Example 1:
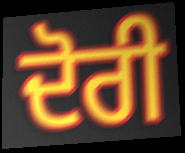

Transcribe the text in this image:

ਦੋਰੀ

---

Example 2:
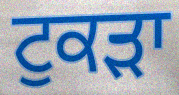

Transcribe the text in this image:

ਟੁਕਡ਼ਾ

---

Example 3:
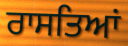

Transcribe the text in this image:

ਰਾਸਤਿਆਂ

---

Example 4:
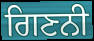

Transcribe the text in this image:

ਗਿਣਨੀ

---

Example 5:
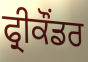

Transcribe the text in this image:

ਫ੍ਰੀਕੌਂਡਰ